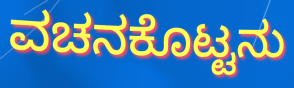
ವಚನಕೊಟ್ಟನು